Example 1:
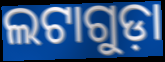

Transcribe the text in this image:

ଲଟାଗୁଡ଼ା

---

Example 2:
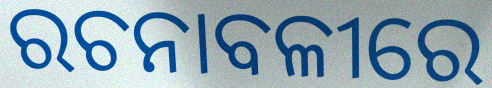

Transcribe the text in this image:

ରଚନାବଳୀରେ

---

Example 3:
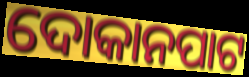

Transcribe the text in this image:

ଦୋକାନପାଟ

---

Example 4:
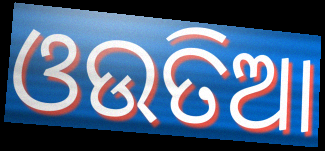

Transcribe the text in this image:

ଓଉତିଆ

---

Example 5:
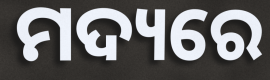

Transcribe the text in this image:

ମଦ୍ୟରେ